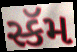
સ્કૅમ